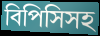
বিপিসিসহ